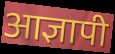
आज्ञापी